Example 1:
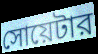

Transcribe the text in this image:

সোয়েটার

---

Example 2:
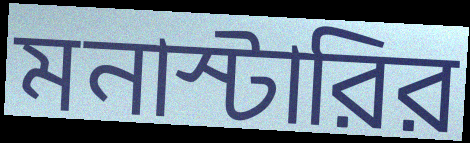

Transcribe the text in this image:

মনাস্টারির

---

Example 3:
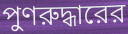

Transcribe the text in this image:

পুণরুদ্ধারের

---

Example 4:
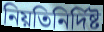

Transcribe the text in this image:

নিয়তিনির্দিষ্ট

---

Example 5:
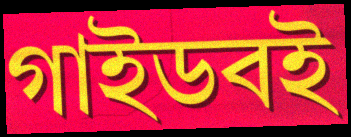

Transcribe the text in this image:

গাইডবই